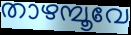
താഴമ്പൂവേ